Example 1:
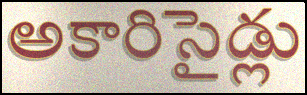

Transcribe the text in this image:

అకారిసైడ్లు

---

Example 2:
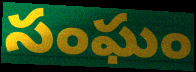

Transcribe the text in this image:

సంఘం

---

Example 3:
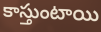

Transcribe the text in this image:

కాస్తుంటాయి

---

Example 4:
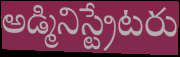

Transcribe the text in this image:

అడ్మినిస్ట్రేటరు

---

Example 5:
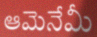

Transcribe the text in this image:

ఆమెనేమీ